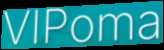
VIPoma